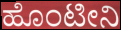
ಹೊಂಟೀನಿ